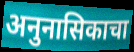
अनुनासिकाचा